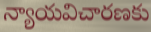
న్యాయవిచారణకు